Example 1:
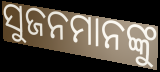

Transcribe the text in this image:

ସୁଜନମାନଙ୍କୁ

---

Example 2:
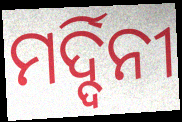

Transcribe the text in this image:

ମର୍ଦ୍ଦିନୀ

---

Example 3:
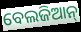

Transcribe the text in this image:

ବେଲଜିଆନ୍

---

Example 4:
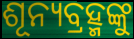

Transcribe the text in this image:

ଶୂନ୍ୟବ୍ରହ୍ମଙ୍କୁ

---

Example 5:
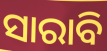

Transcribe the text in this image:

ସାରାବି